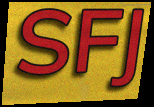
SFJ